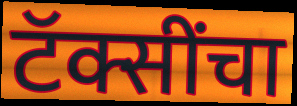
टॅक्सींचा